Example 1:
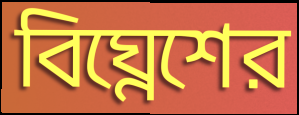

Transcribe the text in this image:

বিঘ্নেশের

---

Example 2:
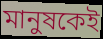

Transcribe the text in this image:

মানুষকেই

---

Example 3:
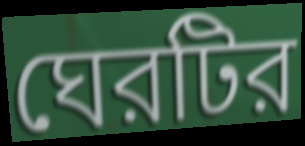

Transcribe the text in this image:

ঘেরটির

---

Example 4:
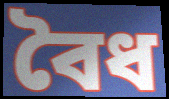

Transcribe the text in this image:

বৈধ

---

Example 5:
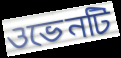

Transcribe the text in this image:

ওভেনটি